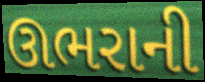
ઊભરાની